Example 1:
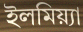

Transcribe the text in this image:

ইলমিয়্যা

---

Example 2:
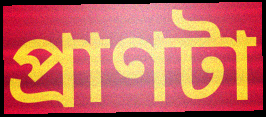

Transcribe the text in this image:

প্রাণটা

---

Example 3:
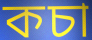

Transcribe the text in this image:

কচা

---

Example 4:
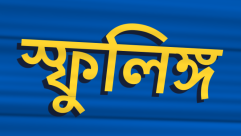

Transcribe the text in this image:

স্ফুলিঙ্গ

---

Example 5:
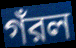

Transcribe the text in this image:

গঁরল